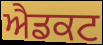
ਐਡਕਟ